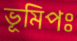
ভূমিপঃ